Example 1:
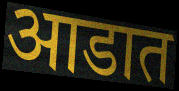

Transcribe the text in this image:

आडात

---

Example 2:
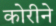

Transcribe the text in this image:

कोरीने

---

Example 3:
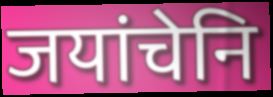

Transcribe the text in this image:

जयांचेनि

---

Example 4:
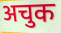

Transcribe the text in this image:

अचुक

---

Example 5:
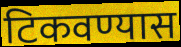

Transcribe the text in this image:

टिकवण्यास